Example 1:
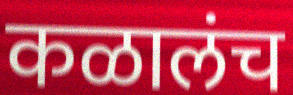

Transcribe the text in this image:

कळालंच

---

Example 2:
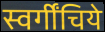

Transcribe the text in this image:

स्वर्गींचिये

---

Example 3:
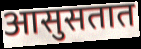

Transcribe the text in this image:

आसुसतात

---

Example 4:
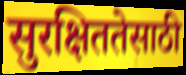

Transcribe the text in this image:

सुरक्षिततेसाठी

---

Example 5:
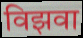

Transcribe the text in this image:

विझवा